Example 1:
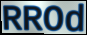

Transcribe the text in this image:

RROd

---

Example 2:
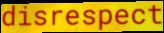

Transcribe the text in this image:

disrespect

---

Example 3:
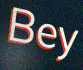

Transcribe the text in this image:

Bey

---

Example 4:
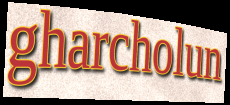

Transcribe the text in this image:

gharcholun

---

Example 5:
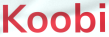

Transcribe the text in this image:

Koobi